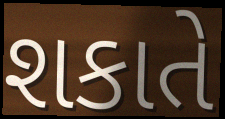
શકાતે